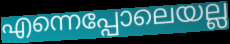
എന്നെപ്പോലെയല്ല